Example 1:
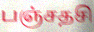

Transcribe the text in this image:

பஞ்சதசி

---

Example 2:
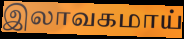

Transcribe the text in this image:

இலாவகமாய்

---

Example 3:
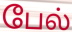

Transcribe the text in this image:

பேல்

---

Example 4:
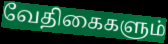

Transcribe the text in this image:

வேதிகைகளும்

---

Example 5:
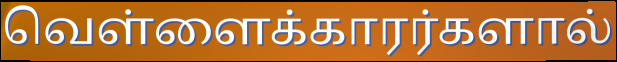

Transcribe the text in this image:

வெள்ளைக்காரர்களால்